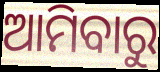
ଆମିବାରୁ